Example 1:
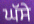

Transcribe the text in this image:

ਘੱਸੇ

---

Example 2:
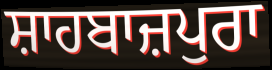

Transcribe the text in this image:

ਸ਼ਾਹਬਾਜ਼ਪੁਰਾ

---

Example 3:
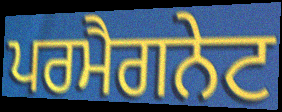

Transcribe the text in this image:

ਪਰਮੈਗਨੇਟ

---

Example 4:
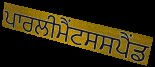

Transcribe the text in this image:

ਪਾਰਲੀਮੈਂਟਸਸਪੈਂਡ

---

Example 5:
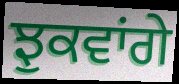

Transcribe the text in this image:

ਝੁਕਵਾਂਗੇ